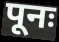
पूनः